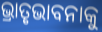
ଭ୍ରାତୃଭାବନାକୁ